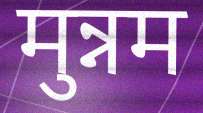
मुन्नम